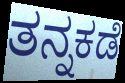
ತನ್ನಕಡೆ